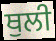
ਥੁਲੀ